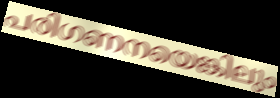
പരിഗണനയെങ്കിലും